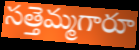
సత్తెమ్మగారూ